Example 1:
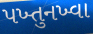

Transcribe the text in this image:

પખ્તુનખ્વા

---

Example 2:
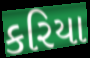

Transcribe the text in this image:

કરિયા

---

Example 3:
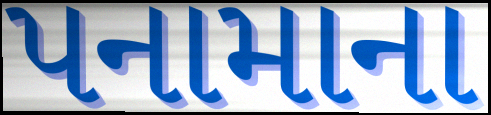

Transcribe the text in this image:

પનામાના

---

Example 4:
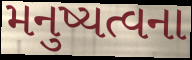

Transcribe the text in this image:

મનુષ્યત્વના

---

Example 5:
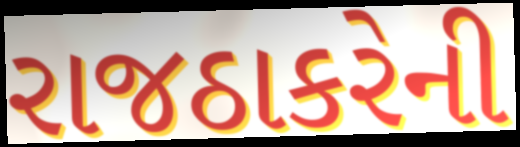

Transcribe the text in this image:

રાજઠાકરેની